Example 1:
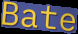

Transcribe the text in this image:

Bate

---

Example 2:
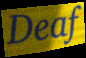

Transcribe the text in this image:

Deaf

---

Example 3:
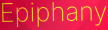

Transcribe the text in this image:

Epiphany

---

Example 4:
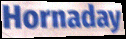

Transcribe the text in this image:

Hornaday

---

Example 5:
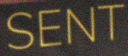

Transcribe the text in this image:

SENT